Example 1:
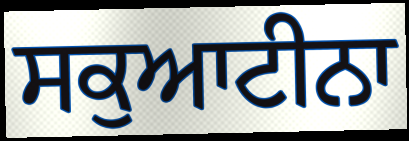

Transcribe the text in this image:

ਸਕੁਆਟੀਨਾ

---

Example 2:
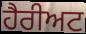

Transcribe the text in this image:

ਹੈਰੀਅਟ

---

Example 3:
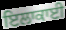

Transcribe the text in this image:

ਇਲਾਕਾਈ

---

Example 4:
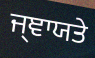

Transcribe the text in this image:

ਜ੍ਞਾਯਤੇ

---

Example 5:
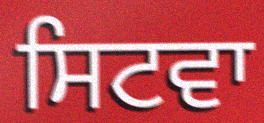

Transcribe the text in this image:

ਸਿਟਵਾ